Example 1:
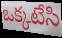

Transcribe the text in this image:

ఒక్కటేసి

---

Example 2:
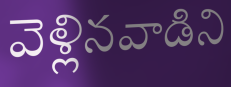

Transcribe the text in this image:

వెళ్లినవాడిని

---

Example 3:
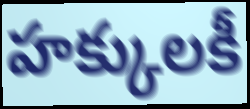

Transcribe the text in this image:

హక్కులకీ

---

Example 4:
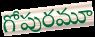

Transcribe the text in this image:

గోపురమూ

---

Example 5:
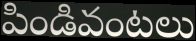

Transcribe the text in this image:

పిండివంటలు